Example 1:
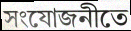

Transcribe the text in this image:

সংযোজনীতে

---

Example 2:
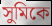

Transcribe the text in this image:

সুমিকে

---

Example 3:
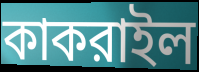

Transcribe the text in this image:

কাকরাইল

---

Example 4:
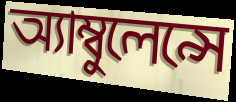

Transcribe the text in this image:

অ্যাম্বুলেন্সে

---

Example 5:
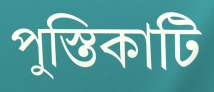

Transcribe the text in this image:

পুস্তিকাটি